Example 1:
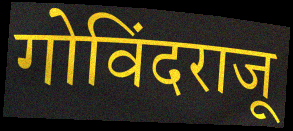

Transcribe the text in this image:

गोविंदराजू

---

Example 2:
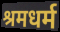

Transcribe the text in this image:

श्रमधर्म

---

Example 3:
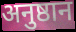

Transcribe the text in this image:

अनुष्ठान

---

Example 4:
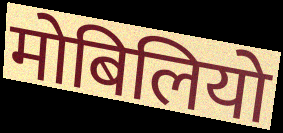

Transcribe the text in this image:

मोबिलियो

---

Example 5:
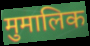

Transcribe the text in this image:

मुमालिक